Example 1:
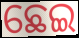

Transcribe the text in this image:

ଛେଇ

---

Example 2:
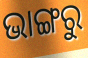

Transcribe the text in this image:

ଭାଙ୍ଗରୁ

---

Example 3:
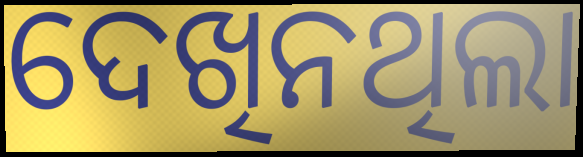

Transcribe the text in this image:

ଦେଖିନଥିଲା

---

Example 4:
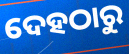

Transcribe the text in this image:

ଦେହଠାରୁ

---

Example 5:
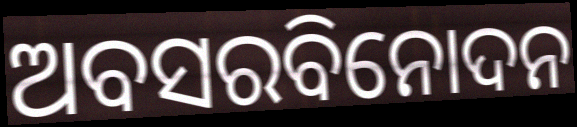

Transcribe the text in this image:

ଅବସରବିନୋଦନ